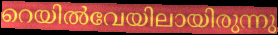
റെയിൽവേയിലായിരുന്നു